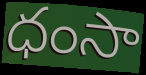
ధంసా